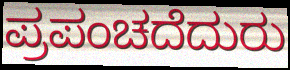
ಪ್ರಪಂಚದೆದುರು